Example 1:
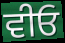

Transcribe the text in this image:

ਵੀਓ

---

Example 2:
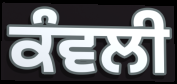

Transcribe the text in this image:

ਕੰਵਲੀ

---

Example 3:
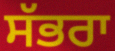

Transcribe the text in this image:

ਸੱਭਰਾ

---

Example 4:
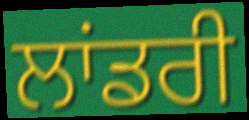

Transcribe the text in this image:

ਲਾਂਡਰੀ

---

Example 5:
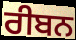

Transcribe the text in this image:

ਰੀਬਨ